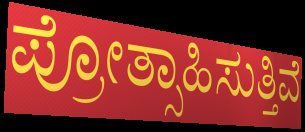
ಪ್ರೋತ್ಸಾಹಿಸುತ್ತಿವೆ